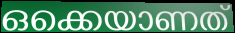
ഒക്കെയാണത്